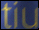
tiu